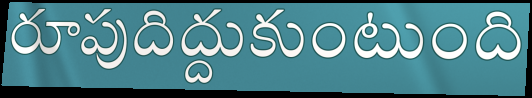
రూపుదిద్దుకుంటుంది